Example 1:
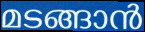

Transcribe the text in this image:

മടങ്ങാൻ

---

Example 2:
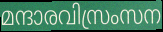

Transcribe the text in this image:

മന്ദാരവിസ്രംസന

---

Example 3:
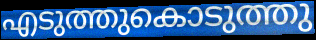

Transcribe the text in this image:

എടുത്തുകൊടുത്തു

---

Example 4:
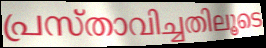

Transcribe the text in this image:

പ്രസ്താവിച്ചതിലൂടെ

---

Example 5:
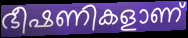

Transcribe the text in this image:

ഭീഷണികളാണ്